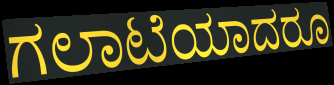
ಗಲಾಟೆಯಾದರೂ